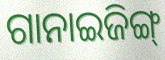
ଗାନାଇଜିଙ୍ଗ୍